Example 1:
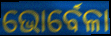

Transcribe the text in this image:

ଭୋର୍ବେଳା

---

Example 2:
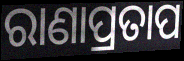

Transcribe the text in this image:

ରାଣାପ୍ରତାପ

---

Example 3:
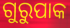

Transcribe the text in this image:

ଗୁରୁପାକ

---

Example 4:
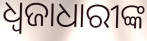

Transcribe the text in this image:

ଧ୍ୱଜାଧାରୀଙ୍କ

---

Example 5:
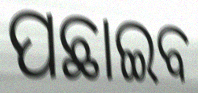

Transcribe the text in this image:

ପଛାଇବ